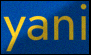
yani